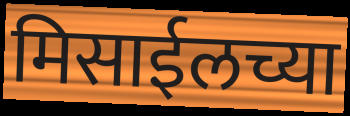
मिसाईलच्या